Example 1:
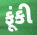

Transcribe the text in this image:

ફૂંકી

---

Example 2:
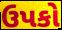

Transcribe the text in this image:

ઉપકો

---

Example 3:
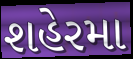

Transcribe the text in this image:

શહેરમા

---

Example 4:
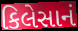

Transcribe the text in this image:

કિલેસાનં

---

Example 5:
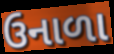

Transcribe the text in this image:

ઉનાળા